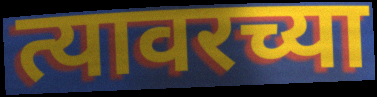
त्यावरच्या